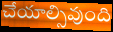
చేయాల్సివుంది